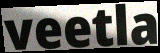
veetla